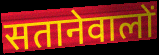
सतानेवालों